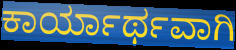
ಕಾರ್ಯಾರ್ಥವಾಗಿ